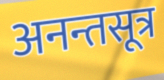
अनन्तसूत्र